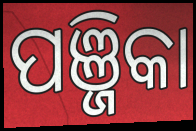
ପଞ୍ଜିକା